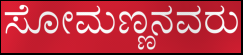
ಸೋಮಣ್ಣನವರು